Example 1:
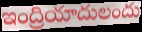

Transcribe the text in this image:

ఇంద్రియాదులందు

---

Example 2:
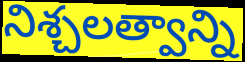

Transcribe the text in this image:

నిశ్చలత్వాన్ని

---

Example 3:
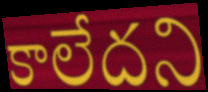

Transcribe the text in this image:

కాలేదని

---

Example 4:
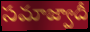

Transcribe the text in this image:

సమాజ్వాదీ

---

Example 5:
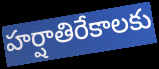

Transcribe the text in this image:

హర్షాతిరేకాలకు